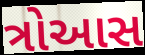
ત્રોઆસ